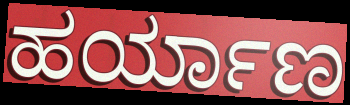
ಹರ್ಯಾಣ